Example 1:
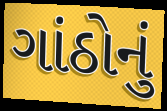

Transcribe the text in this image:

ગાંઠોનું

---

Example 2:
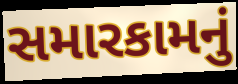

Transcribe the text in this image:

સમારકામનું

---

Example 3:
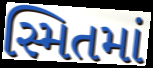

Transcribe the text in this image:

સ્મિતમાં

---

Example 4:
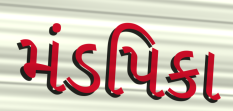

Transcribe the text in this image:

મંડપિકા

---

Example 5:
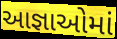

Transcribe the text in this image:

આજ્ઞાઓમાં